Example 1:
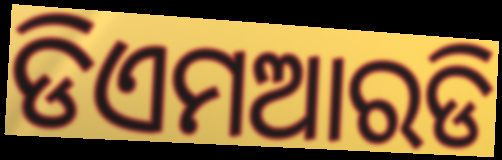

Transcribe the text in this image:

ଡିଏମଆରଡି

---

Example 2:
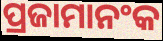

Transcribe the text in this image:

ପ୍ରଜାମାନଂକ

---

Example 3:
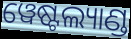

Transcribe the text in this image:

ୱେଷ୍ଟଲ୍ୟାଣ୍ଡ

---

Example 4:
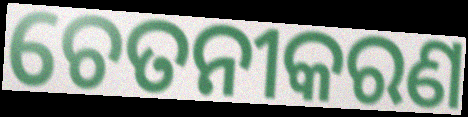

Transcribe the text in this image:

ଚେତନୀକରଣ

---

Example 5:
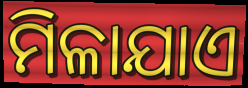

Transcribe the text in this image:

ମିଳାଯାଏ